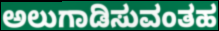
ಅಲುಗಾಡಿಸುವಂತಹ